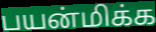
பயன்மிக்க